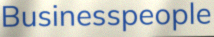
Businesspeople